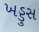
ખડ્ડુસ